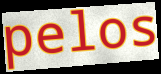
pelos